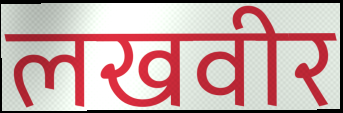
लखवीर